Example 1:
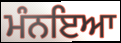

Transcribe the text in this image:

ਮੰਨਇਆ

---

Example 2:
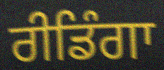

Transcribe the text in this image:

ਰੀਡਿੰਗਾ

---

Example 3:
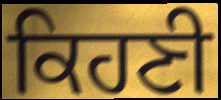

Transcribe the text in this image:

ਕਿਹਣੀ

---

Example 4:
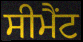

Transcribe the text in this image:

ਸੀਮੈਂਟ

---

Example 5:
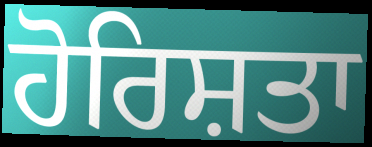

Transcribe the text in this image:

ਹੋਰਿਸ਼ਤਾ